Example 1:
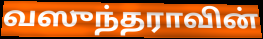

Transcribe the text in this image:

வஸுந்தராவின்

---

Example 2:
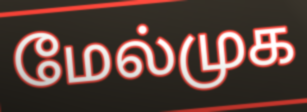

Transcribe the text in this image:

மேல்முக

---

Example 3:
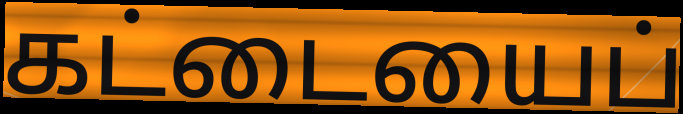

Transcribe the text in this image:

கட்டையைப்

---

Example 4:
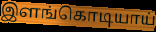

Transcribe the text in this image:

இளங்கொடியாய்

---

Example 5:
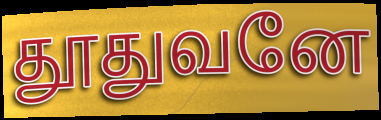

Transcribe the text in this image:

தூதுவனே